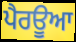
ਪੈਰਊਆ